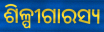
ଶିଳ୍ପୀଗାରସ୍ୟ